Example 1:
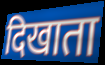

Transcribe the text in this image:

दिखाता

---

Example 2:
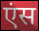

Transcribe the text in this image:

एंस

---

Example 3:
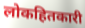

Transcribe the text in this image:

लोकहितकारी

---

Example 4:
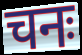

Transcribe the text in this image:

चनः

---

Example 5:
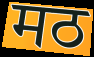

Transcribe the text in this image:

मठ